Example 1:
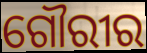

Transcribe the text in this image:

ଗୌରୀର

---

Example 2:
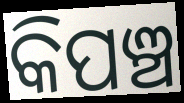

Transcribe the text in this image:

କିପଞ୍ଚ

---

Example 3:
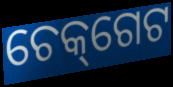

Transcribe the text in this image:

ଚେକ୍‌ଗେଟ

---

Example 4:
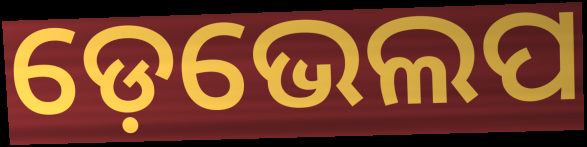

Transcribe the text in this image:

ଡ଼େଭେଲପ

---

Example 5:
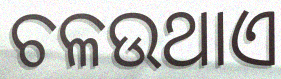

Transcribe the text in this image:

ଚଳଉଥାଏ